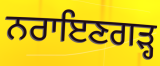
ਨਰਾਇਣਗੜ੍ਹ